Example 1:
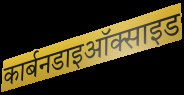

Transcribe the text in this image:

कार्बनडाइऑक्साइड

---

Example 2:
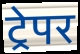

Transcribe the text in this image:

ट्रेपर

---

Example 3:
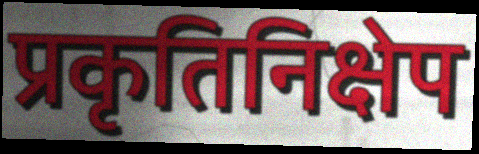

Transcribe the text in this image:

प्रकृतिनिक्षेप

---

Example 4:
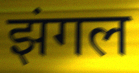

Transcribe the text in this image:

झंगल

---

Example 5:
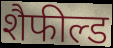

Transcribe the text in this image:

शैफील्ड